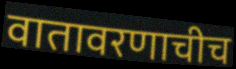
वातावरणाचीच